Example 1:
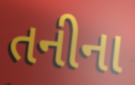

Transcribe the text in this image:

તનીના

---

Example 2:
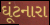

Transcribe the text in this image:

ઘૂંટનારા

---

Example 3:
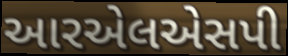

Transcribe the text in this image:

આરએલએસપી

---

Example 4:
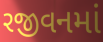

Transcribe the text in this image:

રજીવનમાં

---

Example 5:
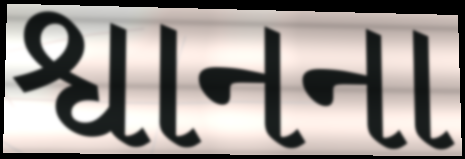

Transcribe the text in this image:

શ્વાનના